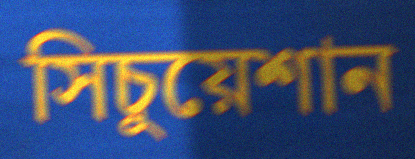
সিচুয়েশান